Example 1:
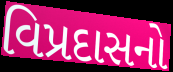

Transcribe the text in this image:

વિપ્રદાસનો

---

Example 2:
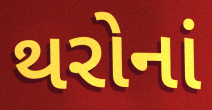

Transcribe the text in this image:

થરોનાં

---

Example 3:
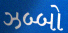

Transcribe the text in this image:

ઝબ્બો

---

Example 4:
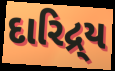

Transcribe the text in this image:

દારિદ્ર્ય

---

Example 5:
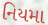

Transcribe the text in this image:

નિયમા